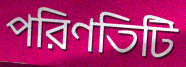
পরিণতিটি